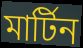
মাৰ্টিন